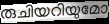
രുചിയറിയുമോ